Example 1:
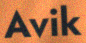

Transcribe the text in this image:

Avik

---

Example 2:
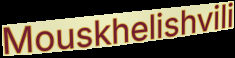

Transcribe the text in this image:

Mouskhelishvili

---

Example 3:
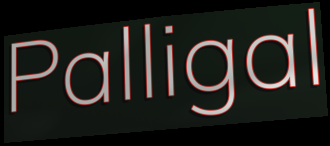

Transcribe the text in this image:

Palligal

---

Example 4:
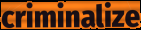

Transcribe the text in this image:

criminalize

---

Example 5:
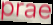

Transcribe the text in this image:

prae